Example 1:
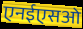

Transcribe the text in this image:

एनईएसओ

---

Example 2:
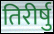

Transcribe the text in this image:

तिरीर्षु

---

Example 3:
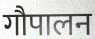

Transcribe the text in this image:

गौपालन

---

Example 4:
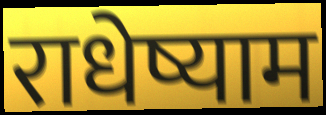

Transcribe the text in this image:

राधेष्याम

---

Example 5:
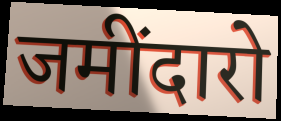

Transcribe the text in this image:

जमींदारो